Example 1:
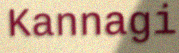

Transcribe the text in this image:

Kannagi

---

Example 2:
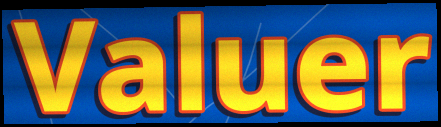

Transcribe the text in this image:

Valuer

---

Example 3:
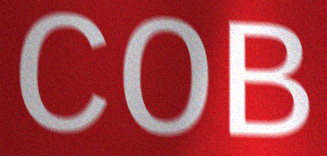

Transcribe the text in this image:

COB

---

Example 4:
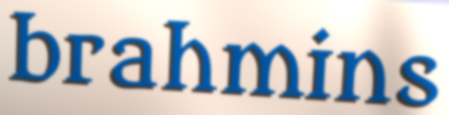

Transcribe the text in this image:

brahmins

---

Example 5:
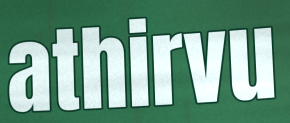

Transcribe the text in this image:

athirvu